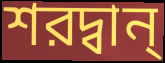
শরদ্বান্